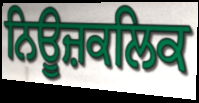
ਨਿਊਜ਼ਕਲਿਕ